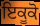
ਇਕੂਕੋ